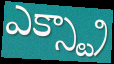
ఎక్స్ట్రా